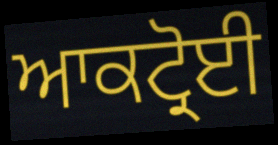
ਆਕਟ੍ਰੋਈ